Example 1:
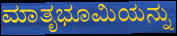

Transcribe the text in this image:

ಮಾತೃಭೂಮಿಯನ್ನು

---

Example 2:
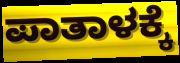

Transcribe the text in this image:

ಪಾತಾಳಕ್ಕೆ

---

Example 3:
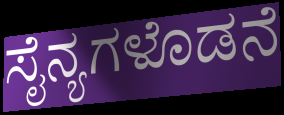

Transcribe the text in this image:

ಸೈನ್ಯಗಳೊಡನೆ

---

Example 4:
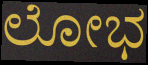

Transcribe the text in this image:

ಲೋಭ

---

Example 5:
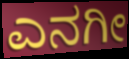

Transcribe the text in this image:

ಎನಗೀ